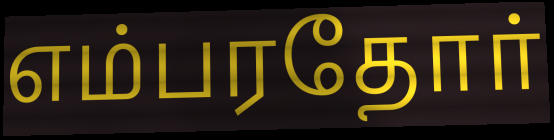
எம்பரதோர்